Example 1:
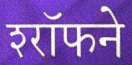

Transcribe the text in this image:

श्रॉफने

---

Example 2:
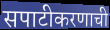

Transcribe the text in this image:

सपाटीकरणाची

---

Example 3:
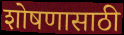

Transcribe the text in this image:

शोषणासाठी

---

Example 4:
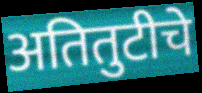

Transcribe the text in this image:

अतितुटीचे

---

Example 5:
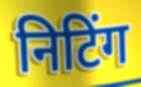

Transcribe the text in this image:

निटिंग